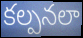
కల్పనలా